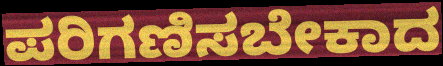
ಪರಿಗಣಿಸಬೇಕಾದ